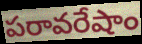
పరావరేషాం